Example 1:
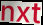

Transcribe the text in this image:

nxt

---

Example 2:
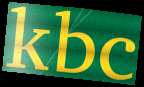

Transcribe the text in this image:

kbc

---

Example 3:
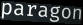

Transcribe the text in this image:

paragon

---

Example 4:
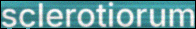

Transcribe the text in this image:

sclerotiorum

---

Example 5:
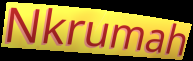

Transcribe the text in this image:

Nkrumah